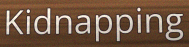
Kidnapping